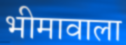
भीमावाला